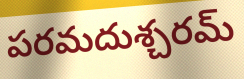
పరమదుశ్చరమ్